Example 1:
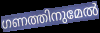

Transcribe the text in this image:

ഗണത്തിനുമേൽ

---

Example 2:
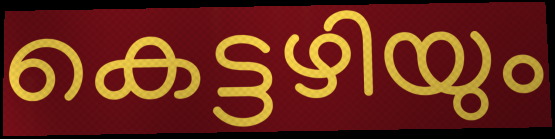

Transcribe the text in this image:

കെട്ടഴിയും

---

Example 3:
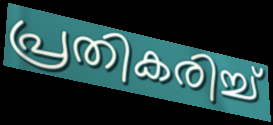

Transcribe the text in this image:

പ്രതികരിച്ച്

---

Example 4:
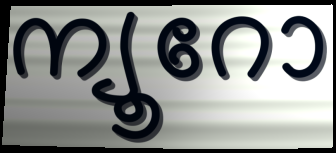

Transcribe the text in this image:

ന്യൂറോ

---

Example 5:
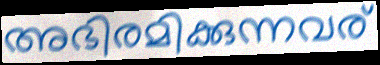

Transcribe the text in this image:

അഭിരമിക്കുന്നവര്